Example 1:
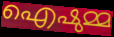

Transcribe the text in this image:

ഐഷുമ്മ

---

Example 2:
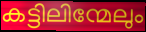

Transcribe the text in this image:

കട്ടിലിന്മേലും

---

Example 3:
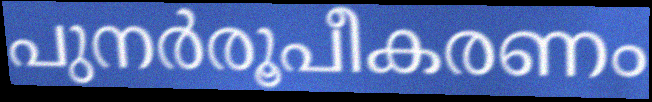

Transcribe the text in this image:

പുനർരൂപീകരണം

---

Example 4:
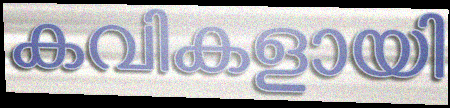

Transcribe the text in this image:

കവികളായി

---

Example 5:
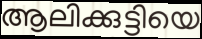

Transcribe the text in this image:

ആലിക്കുട്ടിയെ